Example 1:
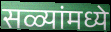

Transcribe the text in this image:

सळ्यांमध्ये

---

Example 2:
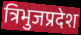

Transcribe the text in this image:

त्रिभुजप्रदेश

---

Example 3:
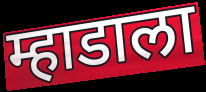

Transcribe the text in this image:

म्हाडाला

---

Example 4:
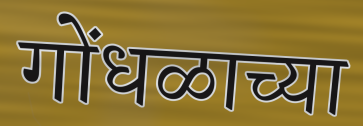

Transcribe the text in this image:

गोंधळाच्या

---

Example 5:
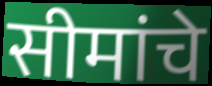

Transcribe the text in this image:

सीमांचे